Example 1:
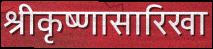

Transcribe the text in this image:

श्रीकृष्णासारिखा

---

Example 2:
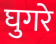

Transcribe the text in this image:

घुगरे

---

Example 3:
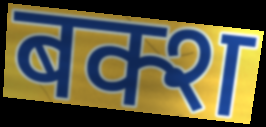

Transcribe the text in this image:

बक्श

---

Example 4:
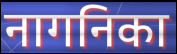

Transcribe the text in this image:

नागनिका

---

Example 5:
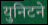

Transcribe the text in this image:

युनिटने